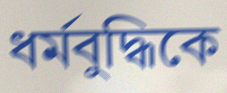
ধর্মবুদ্ধিকে